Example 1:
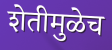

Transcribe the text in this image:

शेतीमुळेच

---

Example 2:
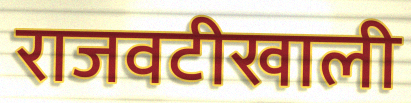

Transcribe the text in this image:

राजवटीखाली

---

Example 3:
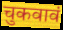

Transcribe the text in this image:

चुकवावं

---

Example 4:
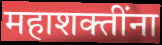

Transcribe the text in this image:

महाशक्तींना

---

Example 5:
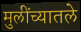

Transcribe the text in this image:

मुलींच्यातले